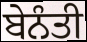
ਬੇਨੰਤੀ